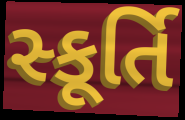
સ્કૂર્તિ